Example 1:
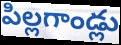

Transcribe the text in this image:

పిల్లగాండ్లు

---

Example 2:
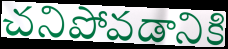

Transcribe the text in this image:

చనిపోవడానికి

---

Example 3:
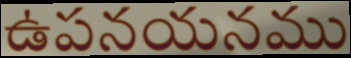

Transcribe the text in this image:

ఉపనయనము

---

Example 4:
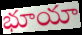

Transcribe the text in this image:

భూయా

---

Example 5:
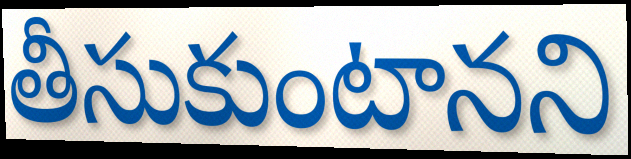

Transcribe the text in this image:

తీసుకుంటానని